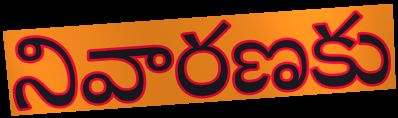
నివారణకు